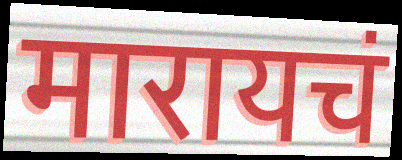
मारायचं